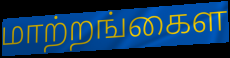
மாற்றங்கைள